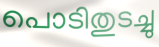
പൊടിതുടച്ചു